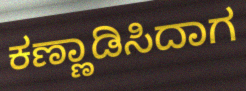
ಕಣ್ಣಾಡಿಸಿದಾಗ